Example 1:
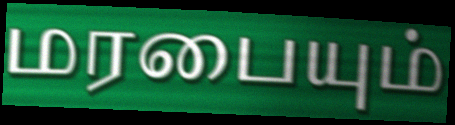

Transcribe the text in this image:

மரபையும்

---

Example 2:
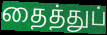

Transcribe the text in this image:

தைத்துப்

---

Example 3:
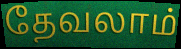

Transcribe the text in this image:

தேவலாம்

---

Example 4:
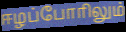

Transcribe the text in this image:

ஈழப்போரிலும்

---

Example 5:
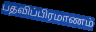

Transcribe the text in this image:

பதவிப்பிரமாணம்